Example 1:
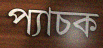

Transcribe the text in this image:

প্যাচক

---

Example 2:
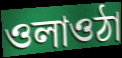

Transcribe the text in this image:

ওলাওঠা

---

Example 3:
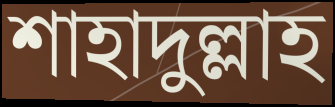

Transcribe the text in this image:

শাহাদুল্লাহ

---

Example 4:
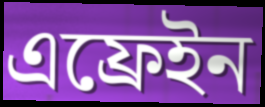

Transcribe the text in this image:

এফ্রেইন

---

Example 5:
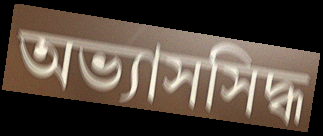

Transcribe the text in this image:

অভ্যাসসিদ্ধ